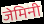
जेमिनी